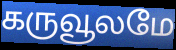
கருவூலமே